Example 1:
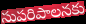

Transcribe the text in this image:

సుపరిపాలనకు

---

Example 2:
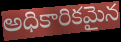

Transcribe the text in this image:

అధికారికమైన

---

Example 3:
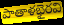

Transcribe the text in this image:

పాతాళభైరవి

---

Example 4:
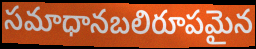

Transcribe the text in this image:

సమాధానబలిరూపమైన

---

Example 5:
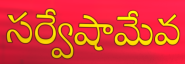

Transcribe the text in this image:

సర్వేషామేవ